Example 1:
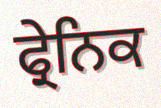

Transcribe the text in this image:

ਫ੍ਰੇਨਿਕ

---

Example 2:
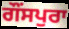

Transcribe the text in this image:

ਗੌਂਸਪੁਰਾ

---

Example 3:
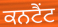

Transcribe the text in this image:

ਕਨਟੈਂਟ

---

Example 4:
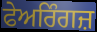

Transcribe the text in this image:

ਫੇਅਰਿੰਗਜ਼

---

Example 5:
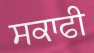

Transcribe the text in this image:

ਸਕਾਫੀ